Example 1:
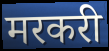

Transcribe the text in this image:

मरकरी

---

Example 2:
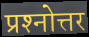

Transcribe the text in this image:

प्रश्‍नोत्तर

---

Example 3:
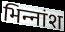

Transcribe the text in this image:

भिन्नांश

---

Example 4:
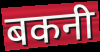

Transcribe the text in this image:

बकनी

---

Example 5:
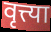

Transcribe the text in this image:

वृत्त्या